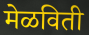
मेळविती